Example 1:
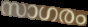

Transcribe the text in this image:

സാഗരം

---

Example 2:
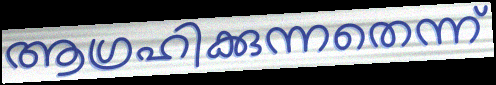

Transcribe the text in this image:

ആഗ്രഹിക്കുന്നതെന്ന്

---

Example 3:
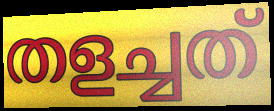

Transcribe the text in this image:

തളച്ചത്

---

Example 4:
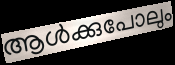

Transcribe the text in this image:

ആൾക്കുപോലും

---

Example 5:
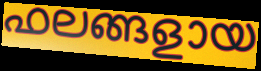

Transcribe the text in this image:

ഫലങ്ങളായ